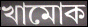
খামোক